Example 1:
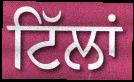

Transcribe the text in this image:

ਟਿੱਲਾਂ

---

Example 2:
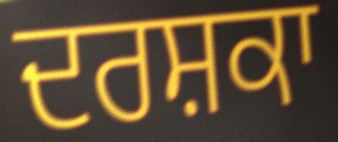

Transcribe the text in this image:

ਦਰਸ਼ਕਾ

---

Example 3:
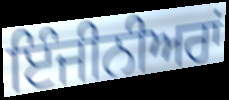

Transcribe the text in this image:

ਇੰਜੀਨੀਅਰਾਂ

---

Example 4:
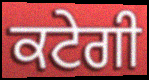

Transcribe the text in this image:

ਕਟੇਗੀ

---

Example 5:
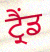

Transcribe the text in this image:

ਟ੍ਰੈਂਡ